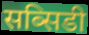
सब्सिडी